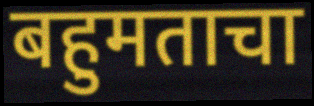
बहुमताचा